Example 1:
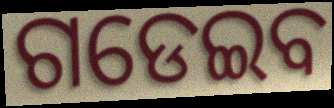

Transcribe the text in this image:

ଗଡେଇବ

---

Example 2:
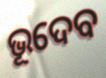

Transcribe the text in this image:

ଭୂଦେବ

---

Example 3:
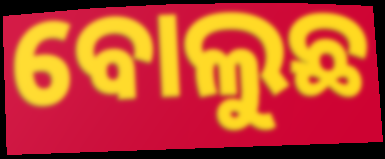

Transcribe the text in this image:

ବୋଲୁଛ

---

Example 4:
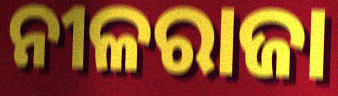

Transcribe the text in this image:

ନୀଳରାଜା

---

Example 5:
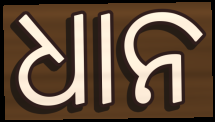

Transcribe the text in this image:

ଧାନ